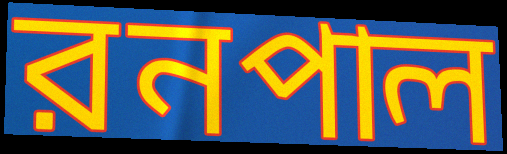
রনপাল